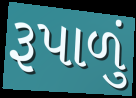
રૂપાળું